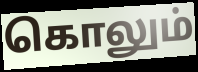
கொலும்